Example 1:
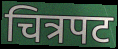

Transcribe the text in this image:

चित्रपट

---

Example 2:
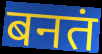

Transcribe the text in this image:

बनतं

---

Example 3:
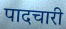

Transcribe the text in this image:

पादचारी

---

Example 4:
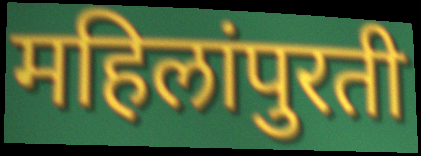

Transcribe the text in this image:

महिलांपुरती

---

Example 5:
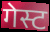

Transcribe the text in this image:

गेस्ट